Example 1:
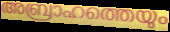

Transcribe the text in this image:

അബ്രാഹത്തെയും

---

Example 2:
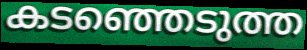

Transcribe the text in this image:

കടഞ്ഞെടുത്ത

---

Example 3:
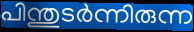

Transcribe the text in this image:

പിന്തുടർന്നിരുന്ന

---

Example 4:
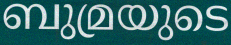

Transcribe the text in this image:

ബുമ്രയുടെ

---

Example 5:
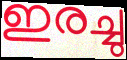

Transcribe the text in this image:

ഇരച്ചു